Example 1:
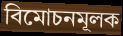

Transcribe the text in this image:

বিমোচনমূলক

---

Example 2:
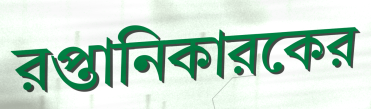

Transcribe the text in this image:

রপ্তানিকারকের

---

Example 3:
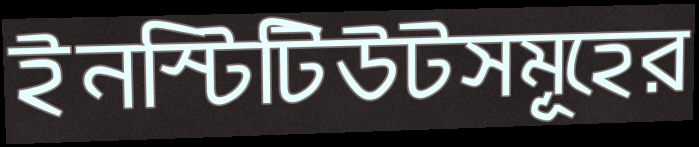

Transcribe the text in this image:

ইনস্টিটিউটসমূহের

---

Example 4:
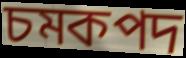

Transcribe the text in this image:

চমকপদ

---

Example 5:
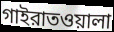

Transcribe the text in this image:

গাইরাতওয়ালা